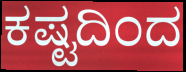
ಕಷ್ಟದಿಂದ